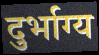
दुर्भाग्य